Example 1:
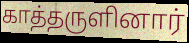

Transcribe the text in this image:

காத்தருளினார்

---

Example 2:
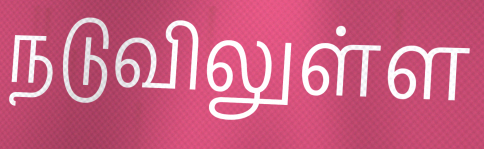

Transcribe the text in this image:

நடுவிலுள்ள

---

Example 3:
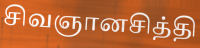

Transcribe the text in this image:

சிவஞானசித்தி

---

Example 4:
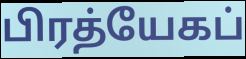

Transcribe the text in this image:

பிரத்யேகப்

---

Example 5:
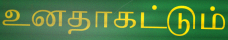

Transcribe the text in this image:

உனதாகட்டும்